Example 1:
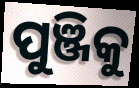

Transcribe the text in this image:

ପୁଞ୍ଜିକୁ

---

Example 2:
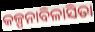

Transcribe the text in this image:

କଳ୍ପନାବିଳାସିତା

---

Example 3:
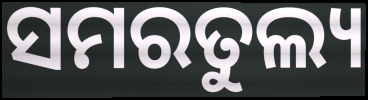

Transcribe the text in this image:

ସମରତୁଲ୍ୟ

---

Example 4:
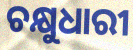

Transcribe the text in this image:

ଚକ୍ଷୁଧାରୀ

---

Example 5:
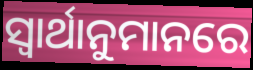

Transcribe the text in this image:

ସ୍ୱାର୍ଥାନୁମାନରେ